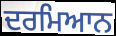
ਦਰਮਿਆਨ